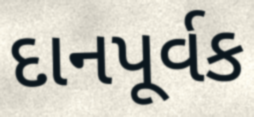
દાનપૂર્વક